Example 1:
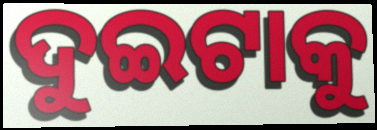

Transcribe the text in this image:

ଦୁଇଟାକୁ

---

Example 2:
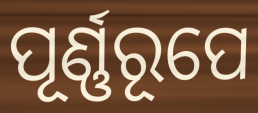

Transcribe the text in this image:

ପୂର୍ଣ୍ଣରୂପେ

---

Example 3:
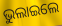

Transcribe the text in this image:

ଭୁଲାଇଲେ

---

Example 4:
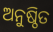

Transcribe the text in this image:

ଅନୁଷ୍ଠିତ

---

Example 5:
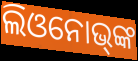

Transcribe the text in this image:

ଲିଓନୋଭ୍‌ଙ୍କ